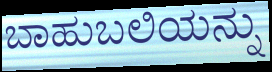
ಬಾಹುಬಲಿಯನ್ನು